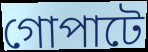
গোপাটে